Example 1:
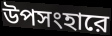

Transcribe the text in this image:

উপসংহারে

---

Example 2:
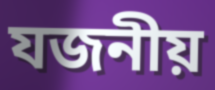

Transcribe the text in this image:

যজনীয়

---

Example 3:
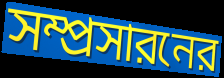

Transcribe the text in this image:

সম্প্রসারনের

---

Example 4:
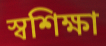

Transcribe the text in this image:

স্বশিক্ষা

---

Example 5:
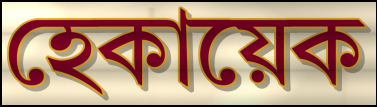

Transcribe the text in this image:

হেকায়েক